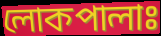
লোকপালাঃ